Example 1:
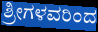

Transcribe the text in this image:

ಶ್ರೀಗಳವರಿಂದ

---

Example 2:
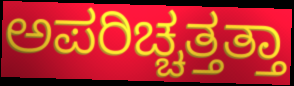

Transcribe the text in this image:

ಅಪರಿಚ್ಚತ್ತತ್ತಾ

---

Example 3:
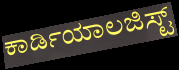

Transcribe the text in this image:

ಕಾರ್ಡಿಯಾಲಜಿಸ್ಟ್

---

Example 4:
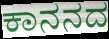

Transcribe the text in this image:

ಕಾನನದ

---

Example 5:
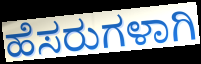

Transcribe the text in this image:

ಹೆಸರುಗಳಾಗಿ